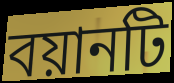
বয়ানটি